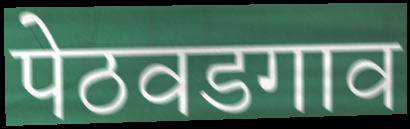
पेठवडगाव